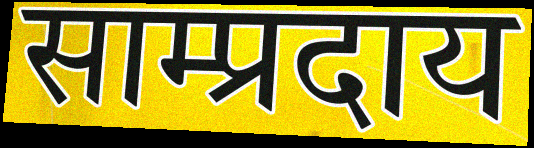
साम्प्रदाय